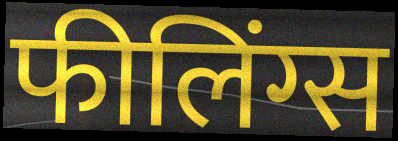
फीलिंग्स